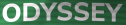
ODYSSEY